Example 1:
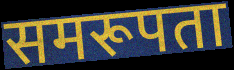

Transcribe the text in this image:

समरूपता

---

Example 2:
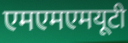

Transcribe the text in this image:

एमएमएमयूटी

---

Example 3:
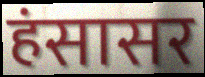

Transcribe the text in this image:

हंसासर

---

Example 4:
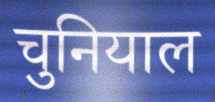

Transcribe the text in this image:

चुनियाल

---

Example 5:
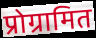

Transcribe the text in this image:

प्रोग्रामित